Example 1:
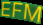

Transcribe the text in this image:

EFM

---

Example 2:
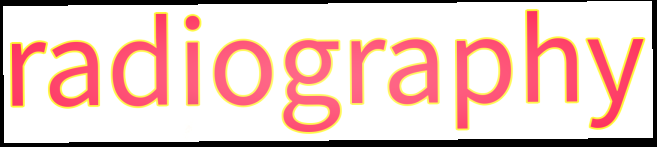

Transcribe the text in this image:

radiography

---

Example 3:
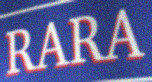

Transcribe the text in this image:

RARA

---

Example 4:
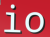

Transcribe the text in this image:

io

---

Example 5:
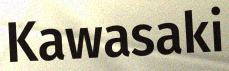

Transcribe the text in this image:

Kawasaki